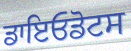
ਡਾਇਓਡੋਟਸ